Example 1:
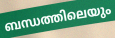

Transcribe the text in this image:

ബന്ധത്തിലെയും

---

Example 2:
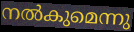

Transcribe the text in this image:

നൽകുമെന്നു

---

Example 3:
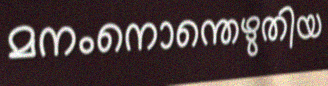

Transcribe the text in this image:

മനംനൊന്തെഴുതിയ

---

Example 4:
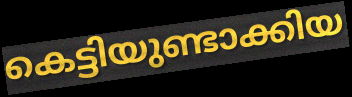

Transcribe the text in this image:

കെട്ടിയുണ്ടാക്കിയ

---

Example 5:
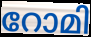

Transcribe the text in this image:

റോമി